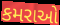
કમરાઓ